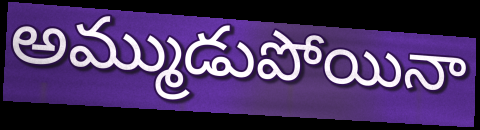
అమ్ముడుపోయినా